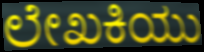
ಲೇಖಕಿಯು